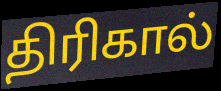
திரிகால்